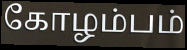
கோழம்பம்